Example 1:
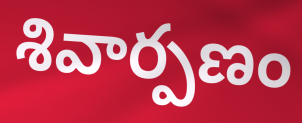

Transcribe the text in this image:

శివార్పణం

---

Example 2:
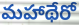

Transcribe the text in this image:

మహాథేరో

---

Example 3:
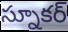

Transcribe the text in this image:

స్నూకర్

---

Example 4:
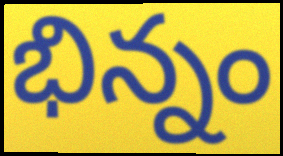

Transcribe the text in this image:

భిన్నం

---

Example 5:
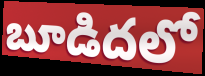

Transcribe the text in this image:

బూడిదలో